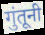
गुंतूनी